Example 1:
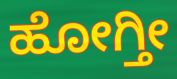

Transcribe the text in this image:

ಹೋಗ್ತೀ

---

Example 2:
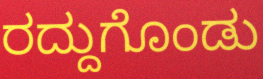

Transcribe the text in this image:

ರದ್ದುಗೊಂಡು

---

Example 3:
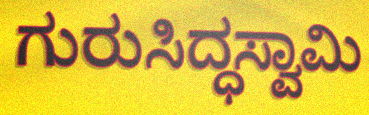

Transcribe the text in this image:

ಗುರುಸಿದ್ಧಸ್ವಾಮಿ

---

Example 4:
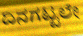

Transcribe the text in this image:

ದಿನಗಟ್ಟಲೇ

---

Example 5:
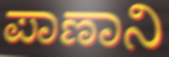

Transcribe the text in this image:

ಪಾಣಾನಿ